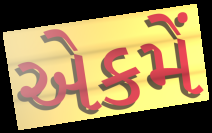
એકમેં